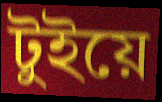
টুইয়ে